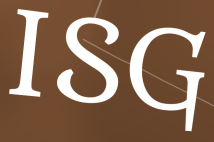
ISG